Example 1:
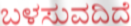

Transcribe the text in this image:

ಬಳಸುವದಿದೆ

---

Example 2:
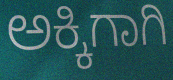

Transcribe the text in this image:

ಅಕ್ಕಿಗಾಗಿ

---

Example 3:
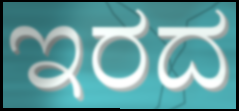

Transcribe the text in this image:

ಇರದ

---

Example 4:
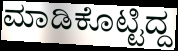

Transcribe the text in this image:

ಮಾಡಿಕೊಟ್ಟಿದ್ದ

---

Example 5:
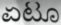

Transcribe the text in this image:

ಏಟೂ